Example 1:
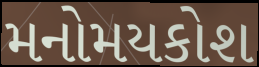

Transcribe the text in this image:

મનોમયકોશ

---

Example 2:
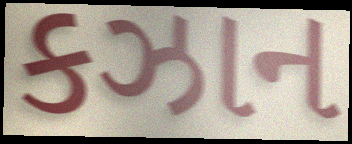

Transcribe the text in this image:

કઝાન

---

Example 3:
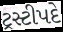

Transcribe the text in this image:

ટ્રસ્ટીપદે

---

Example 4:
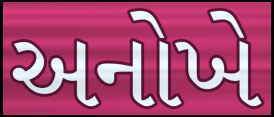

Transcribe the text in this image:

અનોખે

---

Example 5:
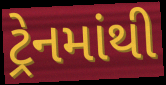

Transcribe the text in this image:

ટ્રેનમાંથી